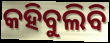
କହିବୁଲିବି